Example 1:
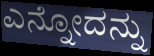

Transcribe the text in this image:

ಎನ್ನೋದನ್ನು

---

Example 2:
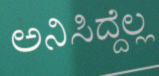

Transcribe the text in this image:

ಅನಿಸಿದ್ದೆಲ್ಲ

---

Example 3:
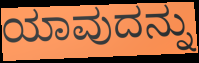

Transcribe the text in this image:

ಯಾವುದನ್ನು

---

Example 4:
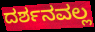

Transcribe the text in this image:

ದರ್ಶನವಲ್ಲ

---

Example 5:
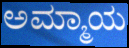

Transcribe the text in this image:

ಅಮ್ಮಾಯ